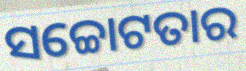
ସଚ୍ଚୋଟତାର